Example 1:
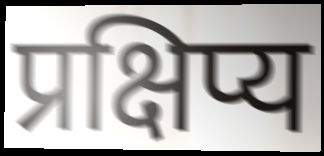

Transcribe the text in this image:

प्रक्षिप्य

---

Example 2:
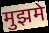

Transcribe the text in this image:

मुझमे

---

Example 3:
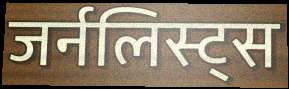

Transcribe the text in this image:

जर्नलिस्ट्स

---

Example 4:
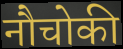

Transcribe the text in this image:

नौचोकी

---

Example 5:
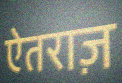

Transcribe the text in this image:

ऐतराज़